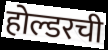
होल्डरची